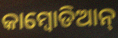
କାମ୍ବୋଡିଆନ୍